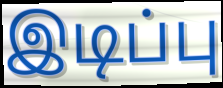
இடிப்பு